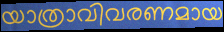
യാത്രാവിവരണമായ